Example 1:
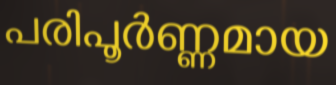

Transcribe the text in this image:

പരിപൂർണ്ണമായ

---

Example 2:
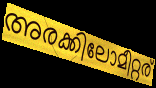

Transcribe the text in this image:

അരക്കിലോമീറ്റര്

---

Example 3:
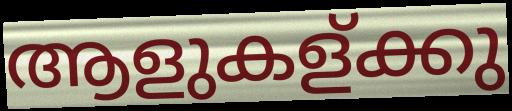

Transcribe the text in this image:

ആളുകള്ക്കു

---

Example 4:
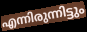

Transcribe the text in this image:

എന്നിരുന്നിട്ടും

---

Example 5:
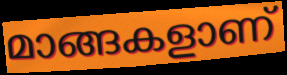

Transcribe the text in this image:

മാങ്ങകളാണ്